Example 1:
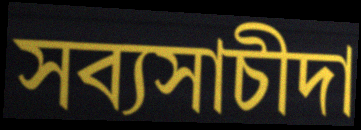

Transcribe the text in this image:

সব্যসাচীদা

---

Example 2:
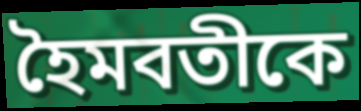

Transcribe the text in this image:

হৈমবতীকে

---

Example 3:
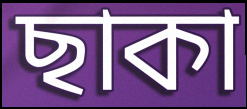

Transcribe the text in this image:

ছাকা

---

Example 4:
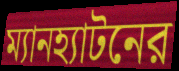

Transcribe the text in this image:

ম্যানহ্যাটনের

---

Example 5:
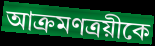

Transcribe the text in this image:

আক্রমণত্রয়ীকে